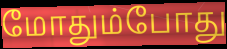
மோதும்போது